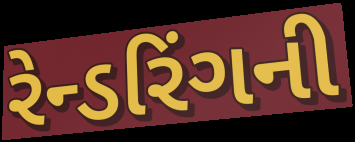
રેન્ડરિંગની